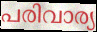
പരിവാര്യ